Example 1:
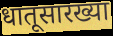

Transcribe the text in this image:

धातूसारख्या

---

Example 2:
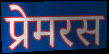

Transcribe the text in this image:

प्रेमरस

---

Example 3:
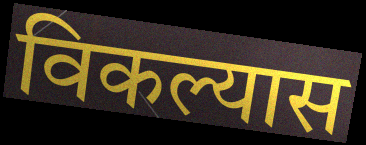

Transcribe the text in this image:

विकल्यास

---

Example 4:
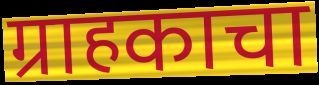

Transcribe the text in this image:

ग्राहकाचा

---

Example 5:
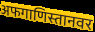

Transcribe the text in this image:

अफगाणिस्तानवर